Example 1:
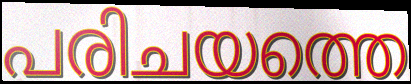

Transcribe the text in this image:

പരിചയത്തെ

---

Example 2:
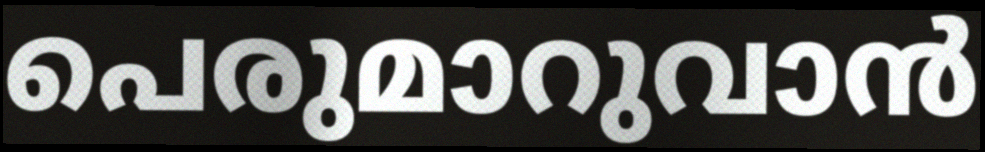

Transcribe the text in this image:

പെരുമാറുവാൻ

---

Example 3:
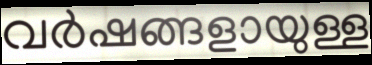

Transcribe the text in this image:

വർഷങ്ങളായുള്ള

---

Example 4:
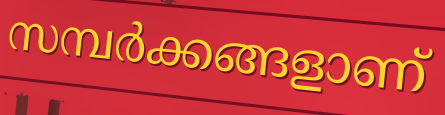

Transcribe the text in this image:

സമ്പർക്കങ്ങളാണ്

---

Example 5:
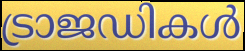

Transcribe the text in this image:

ട്രാജഡികൾ